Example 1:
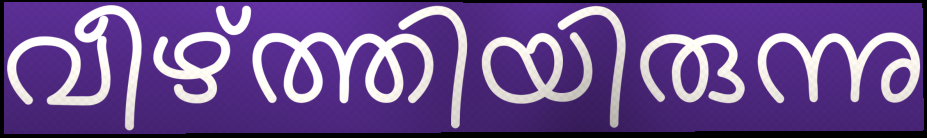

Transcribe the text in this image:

വീഴ്ത്തിയിരുന്നു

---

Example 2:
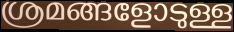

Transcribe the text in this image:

ശ്രമങ്ങളോടുള്ള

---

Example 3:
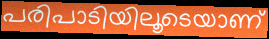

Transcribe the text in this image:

പരിപാടിയിലൂടെയാണ്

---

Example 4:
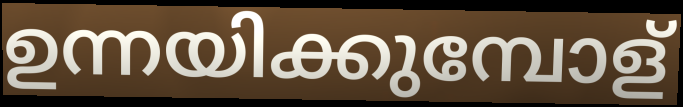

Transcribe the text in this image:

ഉന്നയിക്കുമ്പോള്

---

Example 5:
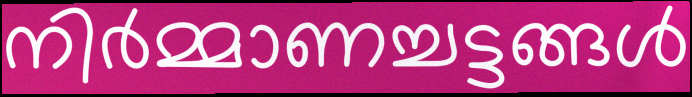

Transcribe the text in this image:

നിർമ്മാണച്ചട്ടങ്ങൾ